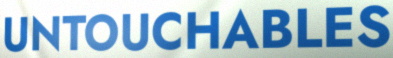
UNTOUCHABLES